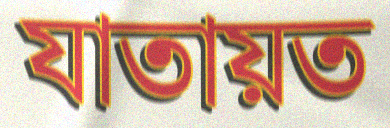
যাতায়ত